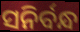
ସନିର୍ବନ୍ଧ